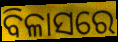
ବିଳାସରେ